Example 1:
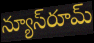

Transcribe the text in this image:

న్యూస్‌రూమ్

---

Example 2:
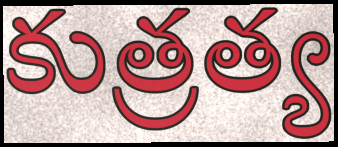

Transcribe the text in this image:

కుత్రత్య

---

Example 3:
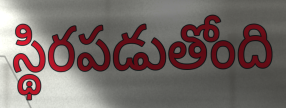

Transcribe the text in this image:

స్థిరపడుతోంది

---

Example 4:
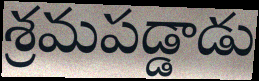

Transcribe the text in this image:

శ్రమపడ్డాడు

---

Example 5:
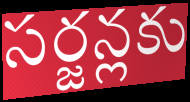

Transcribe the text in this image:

సర్జన్లకు